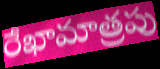
రేఖామాత్రపు